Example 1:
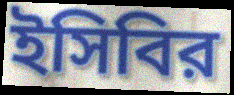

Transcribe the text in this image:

ইসিবির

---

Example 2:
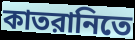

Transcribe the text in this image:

কাতরানিতে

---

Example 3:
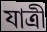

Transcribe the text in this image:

যাত্রী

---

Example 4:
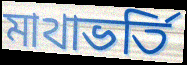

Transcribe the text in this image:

মাথাভর্তি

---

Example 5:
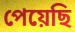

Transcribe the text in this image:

পেয়েছি